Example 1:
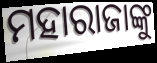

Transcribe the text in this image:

ମହାରାଜାଙ୍କୁ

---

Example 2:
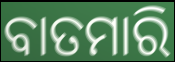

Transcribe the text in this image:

ବାତମାରି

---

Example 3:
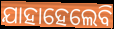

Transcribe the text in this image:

ଯାହାହେଲେବି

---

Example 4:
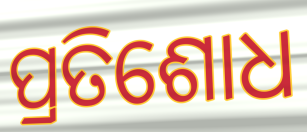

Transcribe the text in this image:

ପ୍ରତିଶୋଧ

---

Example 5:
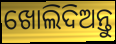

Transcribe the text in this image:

ଖୋଲିଦିଅନ୍ତୁ